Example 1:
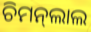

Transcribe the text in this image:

ଚିମନ୍‍ଲାଲ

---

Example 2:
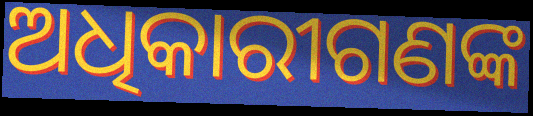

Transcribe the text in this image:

ଅଧିକାରୀଗଣଙ୍କ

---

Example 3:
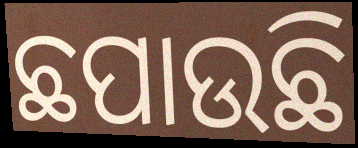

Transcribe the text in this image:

ଛପାଉଛି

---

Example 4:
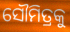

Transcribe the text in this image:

ସୌମିତ୍ରକୁ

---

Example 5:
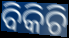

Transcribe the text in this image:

ବିକିଚି